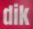
dik